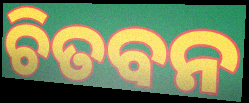
ଚିତବନ